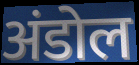
अंडोल